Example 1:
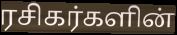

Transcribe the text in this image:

ரசிகர்களின்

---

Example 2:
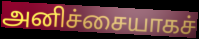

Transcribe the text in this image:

அனிச்சையாகச்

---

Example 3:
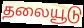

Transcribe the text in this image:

தலையூடு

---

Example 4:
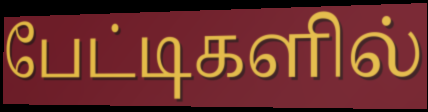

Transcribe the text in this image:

பேட்டிகளில்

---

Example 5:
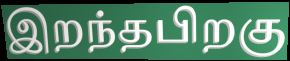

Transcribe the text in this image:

இறந்தபிறகு